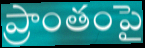
ప్రాంతంపై